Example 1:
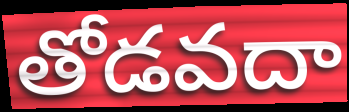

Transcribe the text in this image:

తోడవదా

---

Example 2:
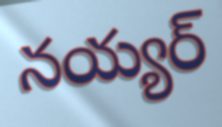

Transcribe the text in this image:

నయ్యర్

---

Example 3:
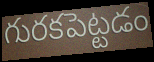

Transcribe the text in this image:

గురకపెట్టడం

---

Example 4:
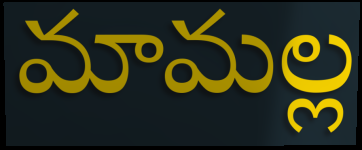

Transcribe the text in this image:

మామల్ల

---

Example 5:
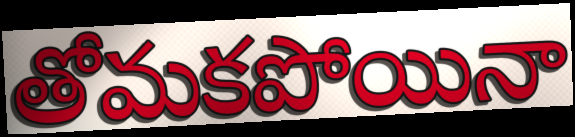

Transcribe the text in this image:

తోమకపోయినా